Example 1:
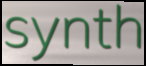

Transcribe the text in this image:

synth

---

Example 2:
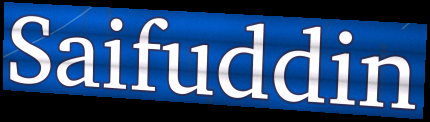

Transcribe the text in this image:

Saifuddin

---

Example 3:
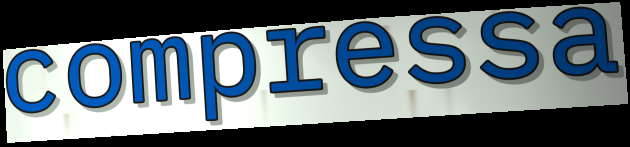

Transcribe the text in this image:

compressa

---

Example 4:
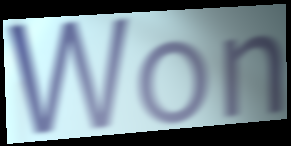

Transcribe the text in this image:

Won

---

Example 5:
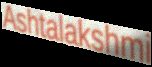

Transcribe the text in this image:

Ashtalakshmi